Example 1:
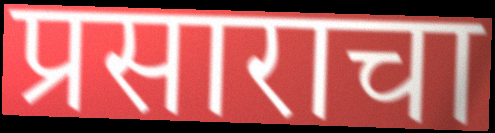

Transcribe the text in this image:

प्रसाराचा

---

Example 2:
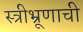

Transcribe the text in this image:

स्त्रीभ्रूणाची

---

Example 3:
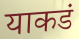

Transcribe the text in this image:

याकडं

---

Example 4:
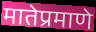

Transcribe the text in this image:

मातेप्रमाणे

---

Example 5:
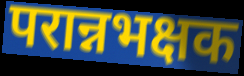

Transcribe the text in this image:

परान्नभक्षक